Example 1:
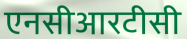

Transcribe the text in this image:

एनसीआरटीसी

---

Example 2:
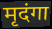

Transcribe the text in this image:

मृदंगा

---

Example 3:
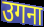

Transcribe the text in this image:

उगना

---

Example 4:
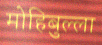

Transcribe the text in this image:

मोहिबुल्ला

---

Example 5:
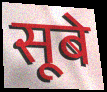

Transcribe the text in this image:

सूबे